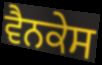
ਵੈਨਕੇਸ